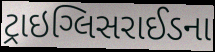
ટ્રાઇગ્લિસરાઈડના